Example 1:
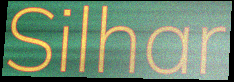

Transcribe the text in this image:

Silhar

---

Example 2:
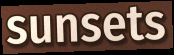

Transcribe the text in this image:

sunsets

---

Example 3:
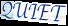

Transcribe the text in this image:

QUIET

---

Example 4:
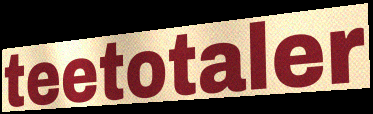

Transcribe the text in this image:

teetotaler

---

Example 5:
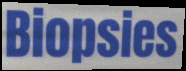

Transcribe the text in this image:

Biopsies